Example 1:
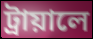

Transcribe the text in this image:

ট্রায়ালে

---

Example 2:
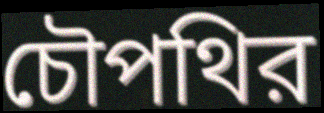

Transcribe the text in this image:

চৌপথির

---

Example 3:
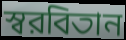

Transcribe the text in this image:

স্বরবিতান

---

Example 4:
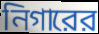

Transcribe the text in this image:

নিগারের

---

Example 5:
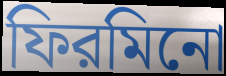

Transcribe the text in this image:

ফিরমিনো